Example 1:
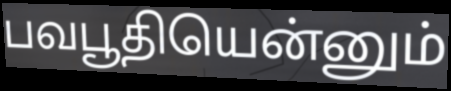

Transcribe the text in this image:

பவபூதியென்னும்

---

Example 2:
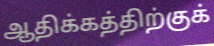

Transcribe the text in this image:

ஆதிக்கத்திற்குக்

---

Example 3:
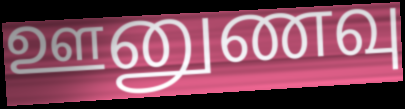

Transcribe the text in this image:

ஊனுணவு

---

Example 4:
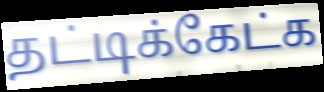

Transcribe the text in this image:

தட்டிக்கேட்க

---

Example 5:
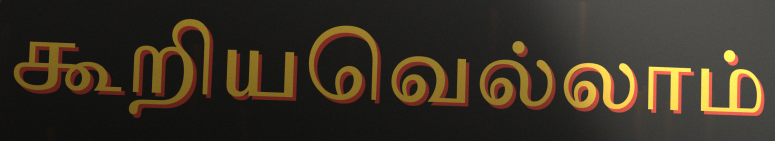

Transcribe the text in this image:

கூறியவெல்லாம்